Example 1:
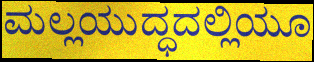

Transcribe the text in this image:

ಮಲ್ಲಯುದ್ಧದಲ್ಲಿಯೂ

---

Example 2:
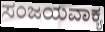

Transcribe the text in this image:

ಸಂಜಯವಾಕ್ಯ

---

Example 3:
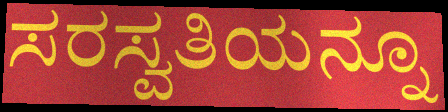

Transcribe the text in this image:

ಸರಸ್ವತಿಯನ್ನೂ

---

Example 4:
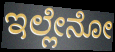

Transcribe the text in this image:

ಇಲ್ಲೇನೋ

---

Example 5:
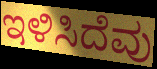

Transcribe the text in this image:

ಇಳಿಸಿದೆವು